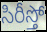
సిరీస్తో